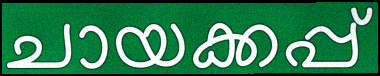
ചായക്കപ്പ്